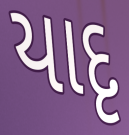
યાદૃ